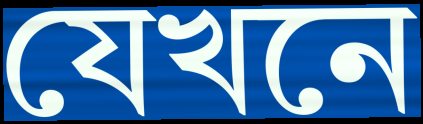
যেখনে